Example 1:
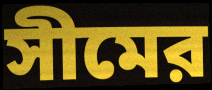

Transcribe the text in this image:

সীমের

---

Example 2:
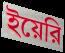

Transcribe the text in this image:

ইয়েরি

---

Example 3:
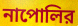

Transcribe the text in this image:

নাপোলির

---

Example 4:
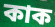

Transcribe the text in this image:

কাক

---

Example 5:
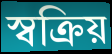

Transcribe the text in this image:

স্বক্রিয়